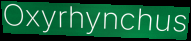
Oxyrhynchus